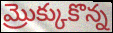
మ్రొక్కుకొన్న